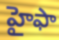
హైఫా